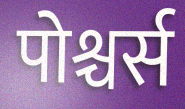
पोश्चर्स